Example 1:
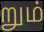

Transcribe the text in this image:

றும்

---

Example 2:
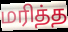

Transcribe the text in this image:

மரித்த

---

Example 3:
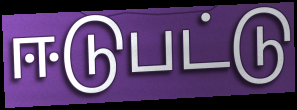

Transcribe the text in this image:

ஈடுபட்டு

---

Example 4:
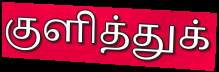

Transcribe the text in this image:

குளித்துக்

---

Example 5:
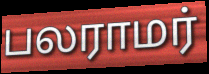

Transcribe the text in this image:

பலராமர்